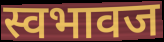
स्वभावज